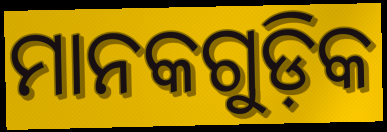
ମାନକଗୁଡ଼ିକ